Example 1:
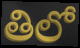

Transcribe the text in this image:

తిలో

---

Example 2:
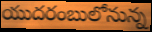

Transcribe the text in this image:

యుదరంబులోనున్న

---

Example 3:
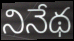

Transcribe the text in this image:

నినేథ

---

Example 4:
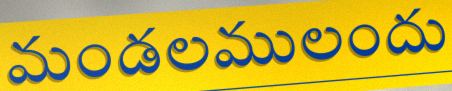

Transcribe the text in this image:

మండలములందు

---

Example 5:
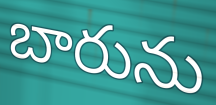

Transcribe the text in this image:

బారును